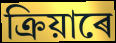
ক্ৰিয়াৰে